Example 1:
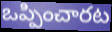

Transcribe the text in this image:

ఒప్పించారట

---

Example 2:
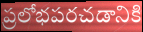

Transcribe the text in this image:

ప్రలోభపరచడానికి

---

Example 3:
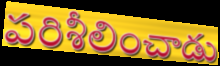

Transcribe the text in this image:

పరిశీలించాడు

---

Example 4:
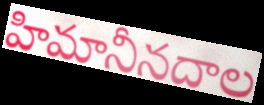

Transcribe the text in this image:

హిమానీనదాల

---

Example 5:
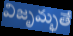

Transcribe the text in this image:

విజృమ్భతే